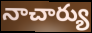
నాచార్యు